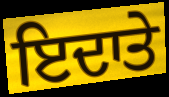
ਇਦਾਤੇ